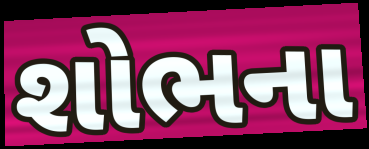
શોભના